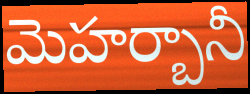
మెహర్బానీ